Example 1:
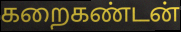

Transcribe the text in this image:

கறைகண்டன்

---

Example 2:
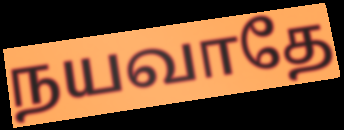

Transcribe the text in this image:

நயவாதே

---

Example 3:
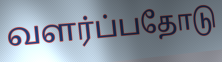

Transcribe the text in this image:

வளர்ப்பதோடு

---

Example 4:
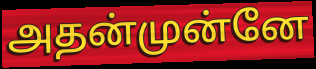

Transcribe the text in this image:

அதன்முன்னே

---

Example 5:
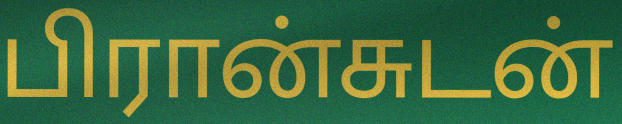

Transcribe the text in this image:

பிரான்சுடன்